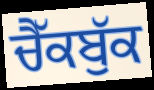
ਚੈੱਕਬੁੱਕ